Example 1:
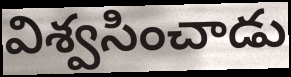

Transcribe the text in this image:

విశ్వసించాడు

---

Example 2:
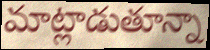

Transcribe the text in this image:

మాట్లాడుతూన్నా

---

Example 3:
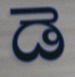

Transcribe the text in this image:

డె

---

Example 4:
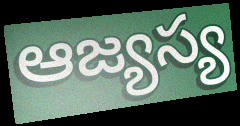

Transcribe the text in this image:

ఆజ్యస్య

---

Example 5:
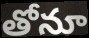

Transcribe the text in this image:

తోనూ